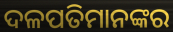
ଦଳପତିମାନଙ୍କର